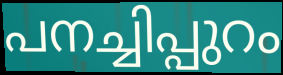
പനച്ചിപ്പുറം